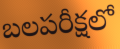
బలపరీక్షలో